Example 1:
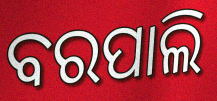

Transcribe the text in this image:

ବରପାଲି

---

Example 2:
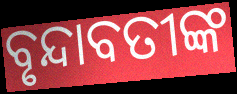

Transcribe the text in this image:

ବୃନ୍ଦାବତୀଙ୍କ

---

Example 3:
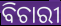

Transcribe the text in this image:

ବିଚାରୀ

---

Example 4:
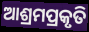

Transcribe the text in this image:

ଆଶ୍ରମପ୍ରକୃତି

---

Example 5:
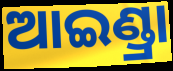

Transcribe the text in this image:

ଆଇଣ୍ଡ୍ରା